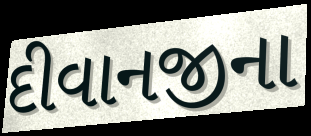
દીવાનજીના